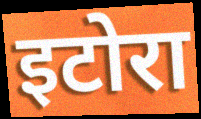
इटोरा